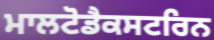
ਮਾਲਟੋਡੈਕਸਟਰਿਨ